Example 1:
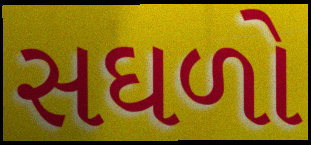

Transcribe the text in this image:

સઘળો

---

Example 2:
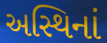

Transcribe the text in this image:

અસ્થિનાં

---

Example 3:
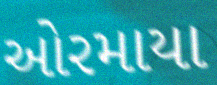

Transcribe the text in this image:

ઓરમાયા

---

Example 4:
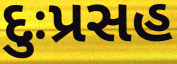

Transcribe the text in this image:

દુઃપ્રસહ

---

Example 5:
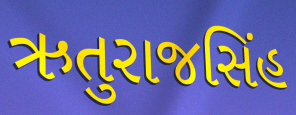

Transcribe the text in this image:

ઋતુરાજસિંહ